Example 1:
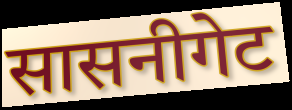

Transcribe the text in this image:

सासनीगेट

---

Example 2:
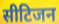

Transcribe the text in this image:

सीटिजन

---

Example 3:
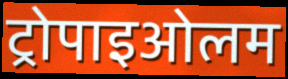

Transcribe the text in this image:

ट्रोपाइओलम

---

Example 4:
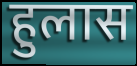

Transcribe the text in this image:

हुलास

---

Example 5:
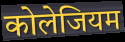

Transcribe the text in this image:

कोलेजियम